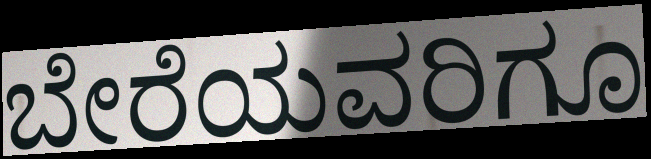
ಬೇರೆಯವರಿಗೂ